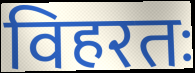
विहरतः